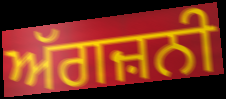
ਅੱਗਜ਼ਨੀ